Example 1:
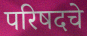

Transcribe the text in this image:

परिषदचे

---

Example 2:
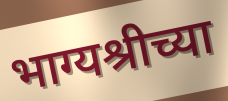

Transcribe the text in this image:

भाग्यश्रीच्या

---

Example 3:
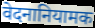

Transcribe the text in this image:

वेदनानियामक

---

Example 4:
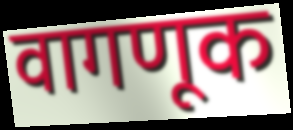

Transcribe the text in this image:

वागणूक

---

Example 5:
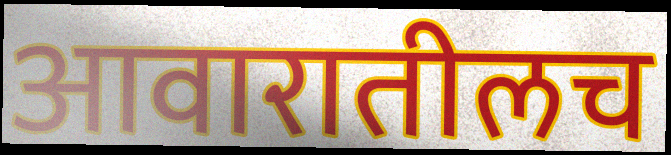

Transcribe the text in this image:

आवारातीलच